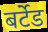
बर्टेड